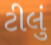
ટીલું